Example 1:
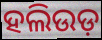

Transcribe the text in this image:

ହଲିଉଡ଼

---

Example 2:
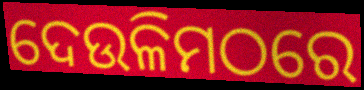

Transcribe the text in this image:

ଦେଉଳିମଠରେ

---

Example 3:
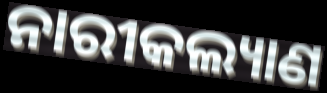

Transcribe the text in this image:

ନାରୀକଲ୍ୟାଣ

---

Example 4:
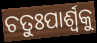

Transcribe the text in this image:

ଚତୁଃପାର୍ଶ୍ୱକୁ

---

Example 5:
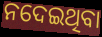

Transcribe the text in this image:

ନଦେଇଥିବା